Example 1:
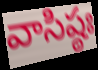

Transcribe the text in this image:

వాసిష్ఠః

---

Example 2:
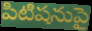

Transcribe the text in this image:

పిటిషనుపై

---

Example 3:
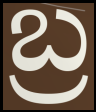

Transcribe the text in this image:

బ్ర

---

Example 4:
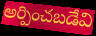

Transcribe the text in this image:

అర్పించబడేవి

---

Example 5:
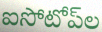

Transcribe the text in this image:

ఐసోటోప్‌ల